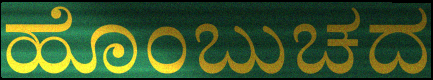
ಹೊಂಬುಚದ